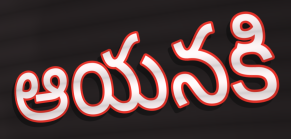
ఆయనకి